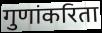
गुणांकरिता